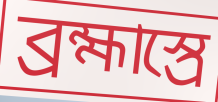
ব্রহ্মাস্ত্রে